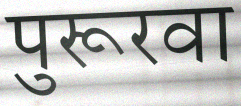
पुरूरवा